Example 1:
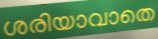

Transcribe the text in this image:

ശരിയാവാതെ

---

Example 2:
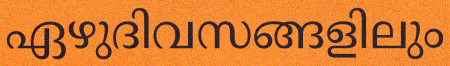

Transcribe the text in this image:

ഏഴുദിവസങ്ങളിലും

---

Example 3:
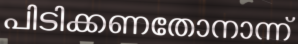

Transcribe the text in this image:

പിടിക്കണതോനാന്ന്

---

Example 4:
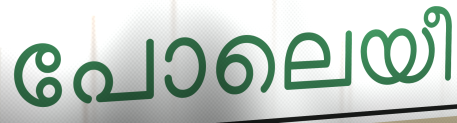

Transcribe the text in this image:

പോലെയീ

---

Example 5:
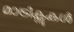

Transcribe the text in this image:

മാട്രിക്സുകൾ